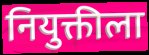
नियुक्तीला